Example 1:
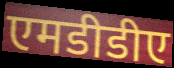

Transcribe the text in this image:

एमडीडीए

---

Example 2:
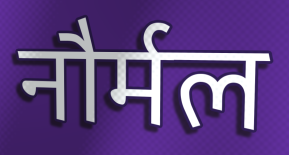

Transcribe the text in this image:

नौर्मल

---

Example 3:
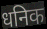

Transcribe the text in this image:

धनिक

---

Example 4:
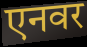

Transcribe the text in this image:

एनवर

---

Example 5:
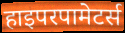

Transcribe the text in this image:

हाइपरपामेटर्स